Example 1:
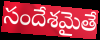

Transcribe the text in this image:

సందేశమైతే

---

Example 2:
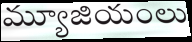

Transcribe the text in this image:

మ్యూజియంలు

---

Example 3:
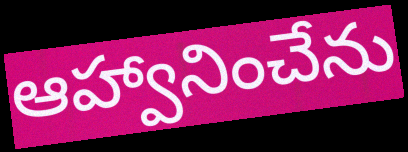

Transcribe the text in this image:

ఆహ్వానించేను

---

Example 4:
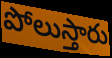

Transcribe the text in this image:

పోలుస్తారు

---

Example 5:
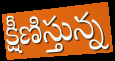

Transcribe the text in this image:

క్షీణిస్తున్న